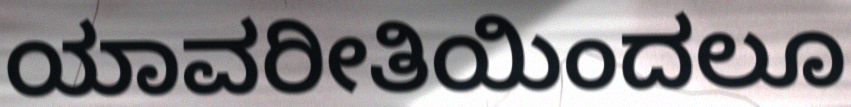
ಯಾವರೀತಿಯಿಂದಲೂ